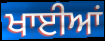
ਖਾਈਆਂ